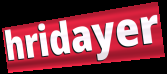
hridayer